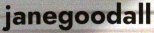
janegoodall